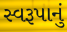
સ્વરૂપાનું